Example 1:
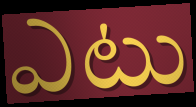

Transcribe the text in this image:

ఎటు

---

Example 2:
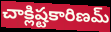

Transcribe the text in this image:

చాక్లిష్టకారిణమ్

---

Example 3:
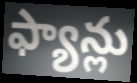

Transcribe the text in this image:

ఫ్యాన్లు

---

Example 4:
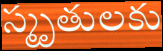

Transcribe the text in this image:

స్మృతులకు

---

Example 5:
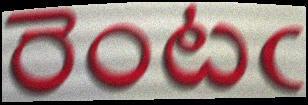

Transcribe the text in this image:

రెంటఁ